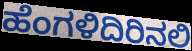
ಹೆಂಗಳಿದಿರಿನಲಿ